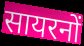
सायरनों